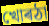
খোৰঠা